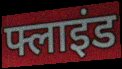
फ्लाइंड